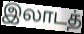
இலாடத்